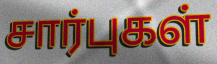
சார்புகள்